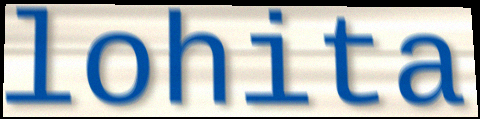
lohita